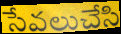
సేవలుచేసి